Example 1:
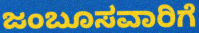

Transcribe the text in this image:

ಜಂಬೂಸವಾರಿಗೆ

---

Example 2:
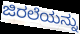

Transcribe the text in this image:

ಜಿರಲೆಯನ್ನು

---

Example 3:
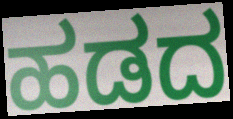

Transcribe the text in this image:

ಹಡದ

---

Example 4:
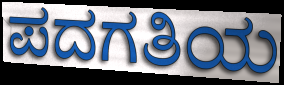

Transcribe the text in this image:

ಪದಗತಿಯ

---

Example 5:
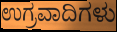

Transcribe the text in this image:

ಉಗ್ರವಾದಿಗಳು